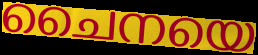
ചൈനയെ